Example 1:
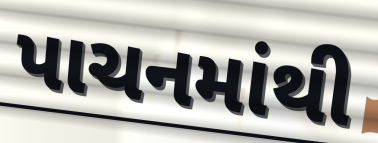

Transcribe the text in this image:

પાચનમાંથી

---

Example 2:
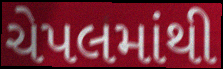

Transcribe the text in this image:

ચેપલમાંથી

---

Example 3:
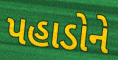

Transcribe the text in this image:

પહાડોને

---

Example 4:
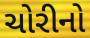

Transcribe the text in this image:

ચોરીનો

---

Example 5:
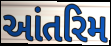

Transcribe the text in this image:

આંતરિમ